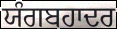
ਯੰਗਬਹਾਦਰ